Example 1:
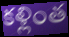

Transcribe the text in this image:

కళ్లింత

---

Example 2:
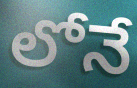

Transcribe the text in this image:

లోనే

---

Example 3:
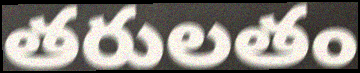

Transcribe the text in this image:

తరులతం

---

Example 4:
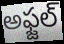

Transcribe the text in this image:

అఫ్జల్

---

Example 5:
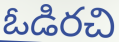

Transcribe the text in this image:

ఓడిరచి